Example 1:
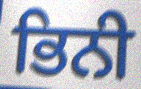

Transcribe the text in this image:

ਭਿਨੀ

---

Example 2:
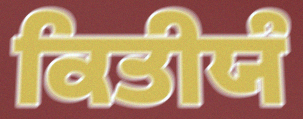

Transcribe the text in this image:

ਕਿਤੀਯੰ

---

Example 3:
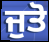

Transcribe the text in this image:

ਜੁਤੋ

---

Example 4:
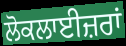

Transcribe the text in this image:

ਲੋਕਲਾਈਜ਼ਰਾਂ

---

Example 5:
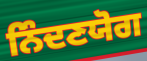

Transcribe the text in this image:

ਨਿੰਦਣਯੋਗ